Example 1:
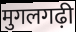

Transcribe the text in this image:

मुगलगढ़ी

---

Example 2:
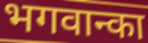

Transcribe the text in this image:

भगवान्का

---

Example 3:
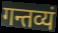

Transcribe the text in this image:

गन्तव्यं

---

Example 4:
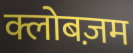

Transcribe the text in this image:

क्लोबज़म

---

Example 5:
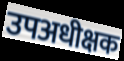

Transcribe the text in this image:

उपअधीक्षक